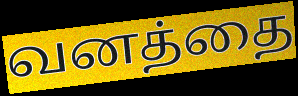
வனத்தை